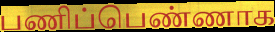
பணிப்பெண்ணாக